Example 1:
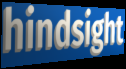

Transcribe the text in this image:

hindsight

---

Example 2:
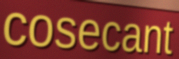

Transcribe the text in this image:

cosecant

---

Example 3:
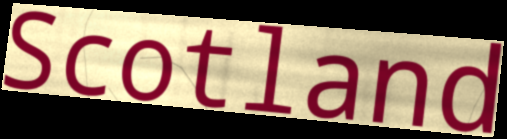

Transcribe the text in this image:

Scotland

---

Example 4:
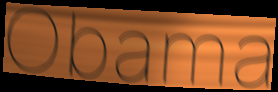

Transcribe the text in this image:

Obama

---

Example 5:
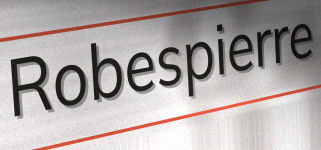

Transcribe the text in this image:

Robespierre